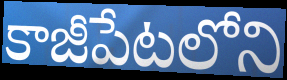
కాజీపేటలోని